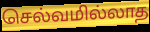
செல்வமில்லாத